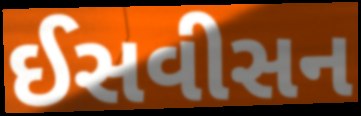
ઈસવીસન